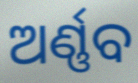
ଅର୍ଣ୍ଣବ